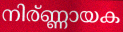
നിര്ണ്ണായക